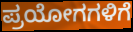
ಪ್ರಯೋಗಗಳಿಗೆ